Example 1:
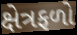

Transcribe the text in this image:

ક્ષેત્રફળો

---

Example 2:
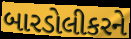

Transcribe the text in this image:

બારડોલીકરને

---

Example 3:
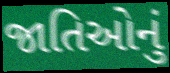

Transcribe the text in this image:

જાતિઓનું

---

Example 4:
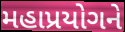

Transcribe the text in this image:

મહાપ્રયોગને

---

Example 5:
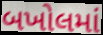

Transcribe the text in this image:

બખોલમાં